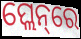
ପ୍ଲେନ୍‌ରେ